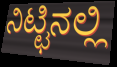
ನಿಟ್ಟಿನಲ್ಲಿ